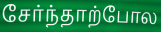
சேர்ந்தாற்போல